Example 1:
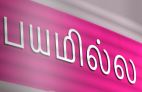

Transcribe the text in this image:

பயமில்ல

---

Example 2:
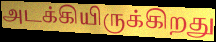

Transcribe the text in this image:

அடக்கியிருக்கிறது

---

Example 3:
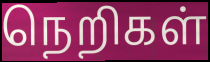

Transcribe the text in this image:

நெறிகள்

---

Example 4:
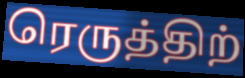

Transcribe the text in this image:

ரெருத்திற்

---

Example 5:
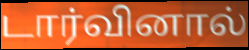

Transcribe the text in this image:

டார்வினால்